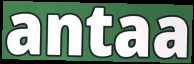
antaa